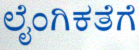
ಲೈಂಗಿಕತೆಗೆ